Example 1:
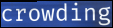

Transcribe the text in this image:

crowding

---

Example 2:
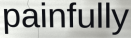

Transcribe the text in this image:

painfully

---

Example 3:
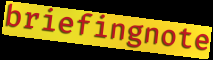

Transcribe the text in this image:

briefingnote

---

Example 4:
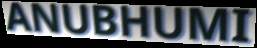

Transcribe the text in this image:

ANUBHUMI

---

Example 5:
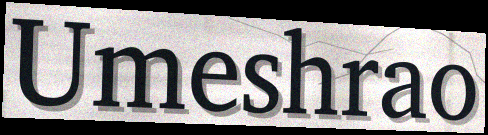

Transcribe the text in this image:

Umeshrao